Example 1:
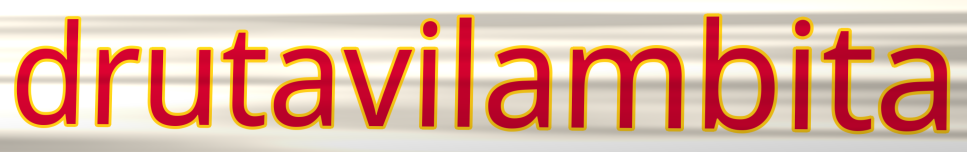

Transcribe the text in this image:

drutavilambita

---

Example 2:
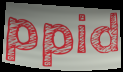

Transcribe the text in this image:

ppid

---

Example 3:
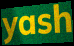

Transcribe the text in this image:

yash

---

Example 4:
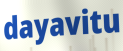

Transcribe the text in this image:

dayavitu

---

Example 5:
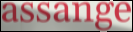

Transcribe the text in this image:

assange